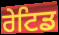
ਰੇਟਿਡ